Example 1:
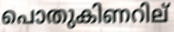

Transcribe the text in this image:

പൊതുകിണറില്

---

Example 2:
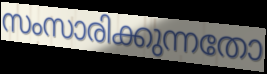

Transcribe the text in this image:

സംസാരിക്കുന്നതോ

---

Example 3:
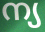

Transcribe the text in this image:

ന്യ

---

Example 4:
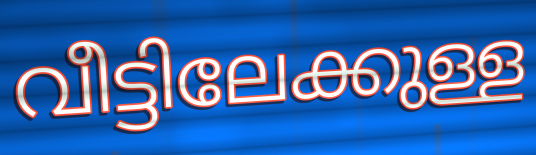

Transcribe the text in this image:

വീട്ടിലേക്കുള്ള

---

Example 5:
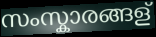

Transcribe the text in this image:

സംസ്കാരങ്ങള്